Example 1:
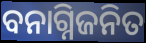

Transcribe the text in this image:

ବନାଗ୍ନିଜନିତ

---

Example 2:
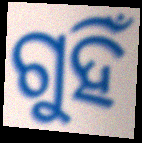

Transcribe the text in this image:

ଗୁହିଁ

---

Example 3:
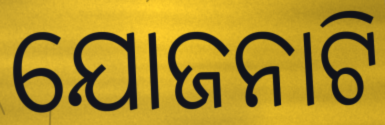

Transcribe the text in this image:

ଯୋଜନାଟି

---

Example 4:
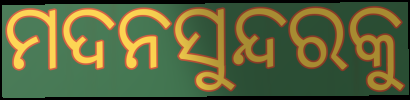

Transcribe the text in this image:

ମଦନସୁନ୍ଦରକୁ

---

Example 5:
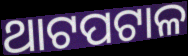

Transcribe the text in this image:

ଥାଟପଟାଳ